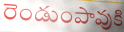
రెండుంపావుకి